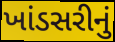
ખાંડસરીનું